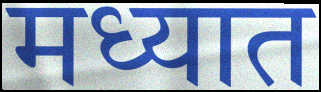
मध्यात